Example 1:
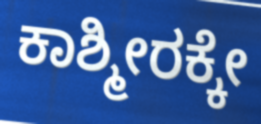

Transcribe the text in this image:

ಕಾಶ್ಮೀರಕ್ಕೇ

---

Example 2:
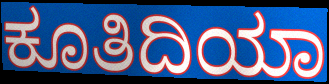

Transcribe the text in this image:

ಕೂತಿದಿಯಾ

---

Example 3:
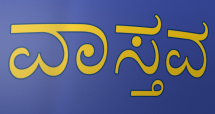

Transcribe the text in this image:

ವಾಸ್ತವ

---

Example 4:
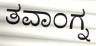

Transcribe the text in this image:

ತವಾಂಗ್ನ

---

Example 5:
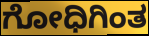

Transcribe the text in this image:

ಗೋಧಿಗಿಂತ